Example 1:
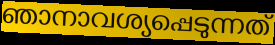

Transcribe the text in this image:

ഞാനാവശ്യപ്പെടുന്നത്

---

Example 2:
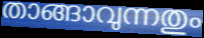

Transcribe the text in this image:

താങ്ങാവുന്നതും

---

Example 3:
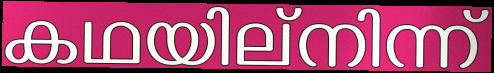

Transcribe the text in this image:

കഥയില്നിന്ന്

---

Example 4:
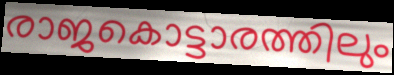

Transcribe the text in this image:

രാജകൊട്ടാരത്തിലും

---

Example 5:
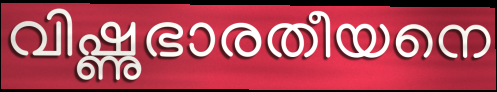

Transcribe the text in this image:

വിഷ്ണുഭാരതീയനെ